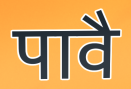
पावै